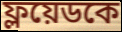
ফ্লয়েডকে